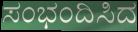
ಸಂಭಂದಿಸಿದ